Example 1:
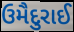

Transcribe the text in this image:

ઉમૈદુરાઈ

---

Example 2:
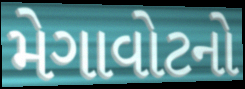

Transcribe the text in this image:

મેગાવોટનો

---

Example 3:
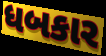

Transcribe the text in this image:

ધબકાર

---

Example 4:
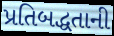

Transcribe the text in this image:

પ્રતિબદ્ધતાની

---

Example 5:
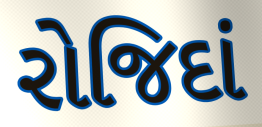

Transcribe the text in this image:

રોજિદાં